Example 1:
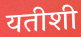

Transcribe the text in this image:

यतीशी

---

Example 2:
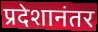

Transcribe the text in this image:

प्रदेशानंतर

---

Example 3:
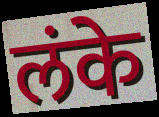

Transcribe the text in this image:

लंके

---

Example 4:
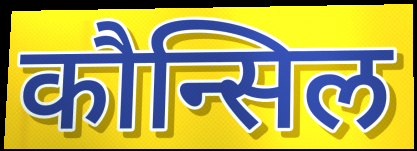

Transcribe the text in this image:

कौन्सिल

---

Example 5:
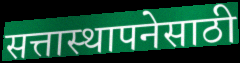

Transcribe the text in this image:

सत्तास्थापनेसाठी